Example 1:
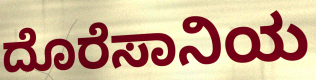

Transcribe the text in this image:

ದೊರೆಸಾನಿಯ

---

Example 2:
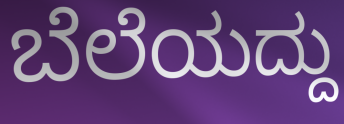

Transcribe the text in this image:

ಬೆಲೆಯದ್ದು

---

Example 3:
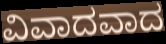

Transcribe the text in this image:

ವಿವಾದವಾದ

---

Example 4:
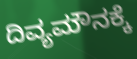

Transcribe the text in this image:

ದಿವ್ಯಮೌನಕ್ಕೆ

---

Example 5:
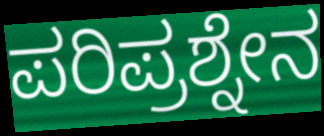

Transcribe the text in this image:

ಪರಿಪ್ರಶ್ನೇನ